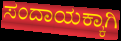
ಸಂದಾಯಕ್ಕಾಗಿ